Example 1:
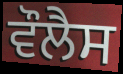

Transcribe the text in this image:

ਵੌਲੈਸ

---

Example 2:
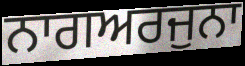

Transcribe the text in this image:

ਨਾਗਅਰਜੁਨਾ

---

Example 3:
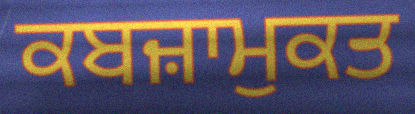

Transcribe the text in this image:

ਕਬਜ਼ਾਮੁਕਤ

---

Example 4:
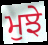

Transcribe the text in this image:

ਮੁਝੇ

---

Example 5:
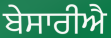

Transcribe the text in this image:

ਬੇਸਾਰੀਐ